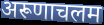
अरूणाचलम